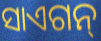
ସାଏଗନ୍